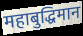
महाबुद्धिमान